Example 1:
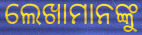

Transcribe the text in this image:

ଲେଖାମାନଙ୍କୁ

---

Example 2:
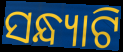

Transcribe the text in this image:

ସନ୍ଧ୍ୟାଟି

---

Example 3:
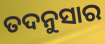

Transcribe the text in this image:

ତଦନୁସାର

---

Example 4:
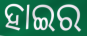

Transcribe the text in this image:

ହାଇର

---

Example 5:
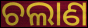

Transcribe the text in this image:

ଚଲାଣ